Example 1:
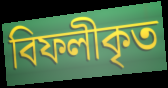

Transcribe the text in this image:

বিফলীকৃত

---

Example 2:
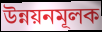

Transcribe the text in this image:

উন্নয়নমূলক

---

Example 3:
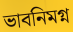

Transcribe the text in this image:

ভাবনিমগ্ন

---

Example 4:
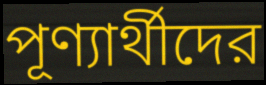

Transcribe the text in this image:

পূণ্যার্থীদের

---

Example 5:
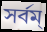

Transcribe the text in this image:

সর্বম্